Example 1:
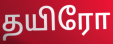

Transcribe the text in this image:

தயிரோ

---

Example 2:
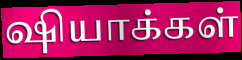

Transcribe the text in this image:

ஷியாக்கள்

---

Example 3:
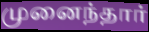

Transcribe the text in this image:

முனைந்தார்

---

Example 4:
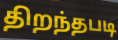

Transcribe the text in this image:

திறந்தபடி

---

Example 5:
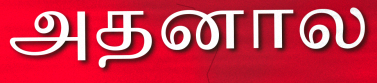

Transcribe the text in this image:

அதனால